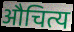
औचित्य